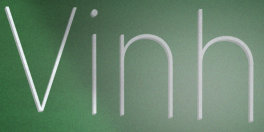
Vinh